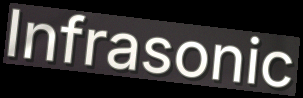
Infrasonic